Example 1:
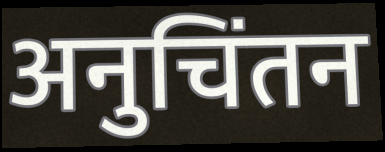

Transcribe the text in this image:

अनुचिंतन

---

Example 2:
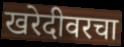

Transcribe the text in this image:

खरेदीवरचा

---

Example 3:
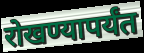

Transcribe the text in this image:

रोखण्यापर्यंत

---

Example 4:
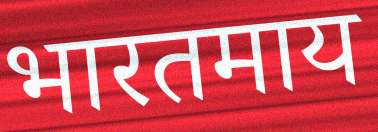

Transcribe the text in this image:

भारतमाय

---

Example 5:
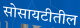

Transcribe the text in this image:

सोसायटीतील